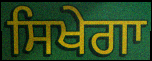
ਸਿਖੇਗਾ